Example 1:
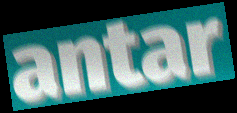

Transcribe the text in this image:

antar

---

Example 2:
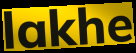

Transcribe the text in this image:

lakhe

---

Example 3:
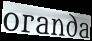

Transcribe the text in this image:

oranda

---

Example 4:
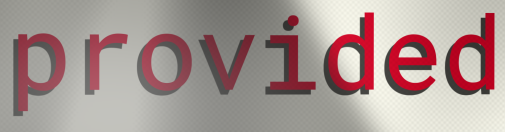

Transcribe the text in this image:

provided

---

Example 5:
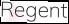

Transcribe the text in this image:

Regent